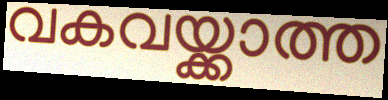
വകവയ്ക്കാത്ത